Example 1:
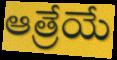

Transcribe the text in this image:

ఆత్రేయే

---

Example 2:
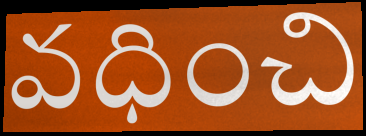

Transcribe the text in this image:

వధించి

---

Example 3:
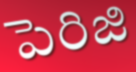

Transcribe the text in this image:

పెరిజి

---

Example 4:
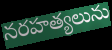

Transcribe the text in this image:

నరహత్యలును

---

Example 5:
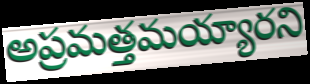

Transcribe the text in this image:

అప్రమత్తమయ్యారని